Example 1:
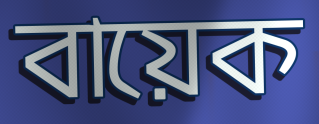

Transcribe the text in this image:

বায়েক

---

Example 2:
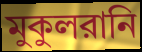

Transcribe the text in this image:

মুকুলরানি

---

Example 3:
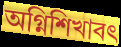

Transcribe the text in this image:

অগ্নিশিখাবৎ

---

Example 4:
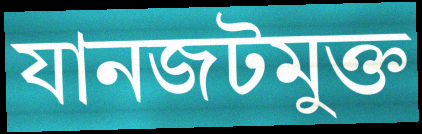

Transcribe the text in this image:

যানজটমুক্ত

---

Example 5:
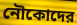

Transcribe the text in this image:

নৌকোদের